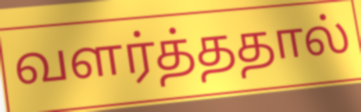
வளர்த்ததால்